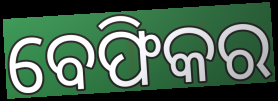
ବେଫିକର